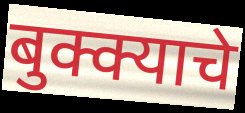
बुक्क्याचे